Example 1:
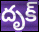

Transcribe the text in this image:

దృక్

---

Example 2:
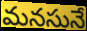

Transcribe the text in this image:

మనసునే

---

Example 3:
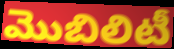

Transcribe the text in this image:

మొబిలిటీ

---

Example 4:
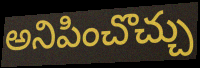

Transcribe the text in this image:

అనిపించొచ్చు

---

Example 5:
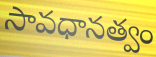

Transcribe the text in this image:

సావధానత్వం